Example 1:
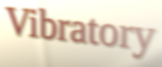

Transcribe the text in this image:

Vibratory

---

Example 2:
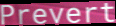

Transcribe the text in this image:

Prevert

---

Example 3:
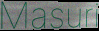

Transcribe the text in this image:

Masuri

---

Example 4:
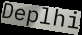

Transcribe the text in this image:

Deplhi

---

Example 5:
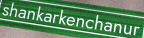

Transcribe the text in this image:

shankarkenchanur